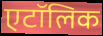
एटॉलिक